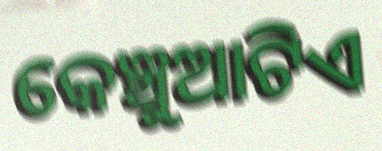
କେଞ୍ଚୁଆଟିଏ